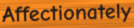
Affectionately